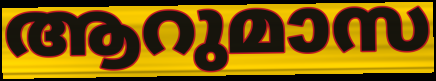
ആറുമാസ